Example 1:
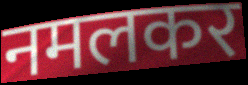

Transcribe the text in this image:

नमलकर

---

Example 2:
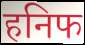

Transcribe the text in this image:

हनिफ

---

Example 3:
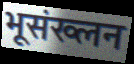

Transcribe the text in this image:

भूसंख्लन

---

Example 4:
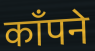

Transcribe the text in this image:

कॉँपने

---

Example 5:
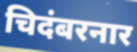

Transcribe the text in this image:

चिदंबरनार